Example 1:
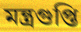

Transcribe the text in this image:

মন্ত্রগুপ্তি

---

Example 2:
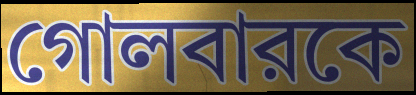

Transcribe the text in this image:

গোলবারকে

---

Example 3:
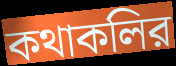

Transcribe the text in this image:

কথাকলির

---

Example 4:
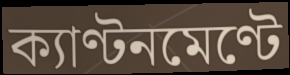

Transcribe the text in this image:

ক্যাণ্টনমেণ্টে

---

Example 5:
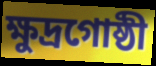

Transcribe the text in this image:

ক্ষুদ্রগোষ্ঠী